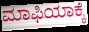
ಮಾಫಿಯಾಕ್ಕೆ